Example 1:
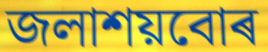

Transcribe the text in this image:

জলাশয়বোৰ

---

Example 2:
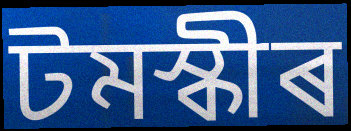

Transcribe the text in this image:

টমস্কীৰ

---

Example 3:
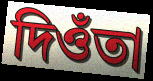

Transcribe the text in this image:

দিওঁতা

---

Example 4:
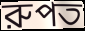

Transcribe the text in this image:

ৰুপত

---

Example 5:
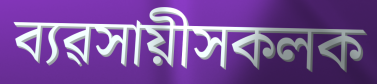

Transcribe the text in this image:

ব্যৱসায়ীসকলক